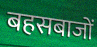
बहसबाजों